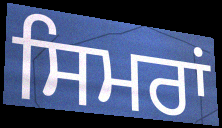
ਸਿਮਰਾਂ